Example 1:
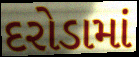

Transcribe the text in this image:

દરોડામાં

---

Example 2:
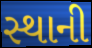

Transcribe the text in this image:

સ્થાની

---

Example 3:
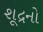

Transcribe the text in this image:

શૂદ્રનો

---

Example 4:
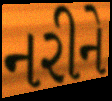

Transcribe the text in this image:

નરીને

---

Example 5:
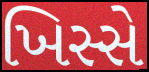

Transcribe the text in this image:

ખિસ્સે